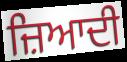
ਜ਼ਿਆਦੀ